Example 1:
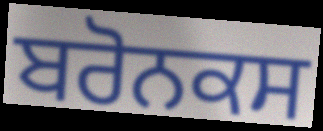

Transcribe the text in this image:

ਬਰੋਨਕਸ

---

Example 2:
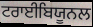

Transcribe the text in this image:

ਟਰਾਈਬਿਯੂਨਲ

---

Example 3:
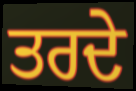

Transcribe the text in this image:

ਤਰਦੇ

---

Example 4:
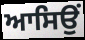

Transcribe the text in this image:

ਆਸਿਉਂ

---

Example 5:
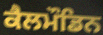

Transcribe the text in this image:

ਕੈਲਮੌਡਿਨ